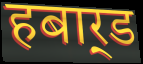
हबार्ड